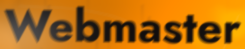
Webmaster